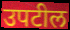
उपटील